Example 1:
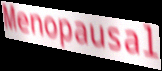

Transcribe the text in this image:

Menopausal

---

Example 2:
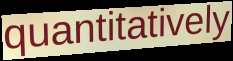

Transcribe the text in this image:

quantitatively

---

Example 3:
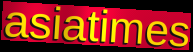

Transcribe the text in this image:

asiatimes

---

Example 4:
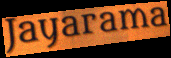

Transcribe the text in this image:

Jayarama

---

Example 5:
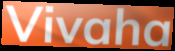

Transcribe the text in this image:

Vivaha